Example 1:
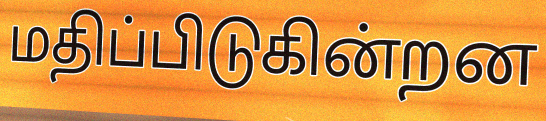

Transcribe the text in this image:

மதிப்பிடுகின்றன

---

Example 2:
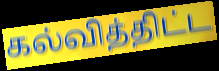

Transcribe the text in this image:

கல்வித்திட்ட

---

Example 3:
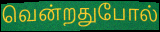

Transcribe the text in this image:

வென்றதுபோல்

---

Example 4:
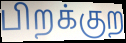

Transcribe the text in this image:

பிறக்குற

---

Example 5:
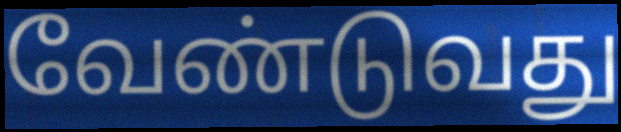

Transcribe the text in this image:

வேண்டுவது